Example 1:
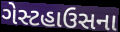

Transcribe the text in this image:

ગેસ્ટહાઉસના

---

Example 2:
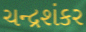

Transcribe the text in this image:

ચન્દ્રશંકર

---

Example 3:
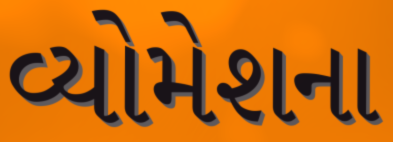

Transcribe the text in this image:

વ્યોમેશના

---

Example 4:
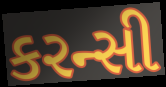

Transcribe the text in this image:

કરન્સી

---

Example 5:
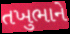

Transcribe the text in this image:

તખુભાને